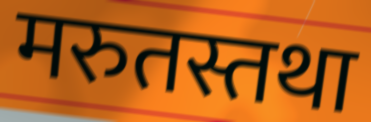
मरुतस्तथा